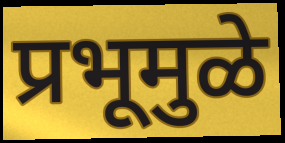
प्रभूमुळे